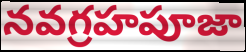
నవగ్రహపూజా